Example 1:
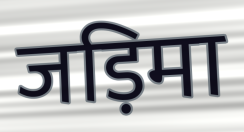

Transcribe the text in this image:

जड़िमा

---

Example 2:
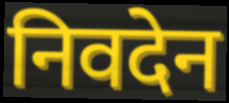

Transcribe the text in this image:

निवदेन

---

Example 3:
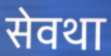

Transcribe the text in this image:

सेवथा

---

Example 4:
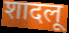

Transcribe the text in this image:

शादलू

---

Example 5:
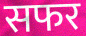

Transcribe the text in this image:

सफर